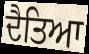
ਦੈਤਿਆ